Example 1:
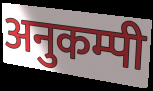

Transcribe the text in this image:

अनुकम्पी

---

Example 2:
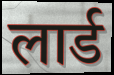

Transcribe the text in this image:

लार्ड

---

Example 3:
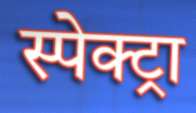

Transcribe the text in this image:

स्पेक्ट्रा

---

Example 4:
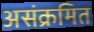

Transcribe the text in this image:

असंक्रमित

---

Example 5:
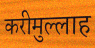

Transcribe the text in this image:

करीमुल्लाह